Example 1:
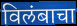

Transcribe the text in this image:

विलंबाचा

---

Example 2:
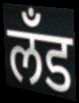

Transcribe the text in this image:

लँड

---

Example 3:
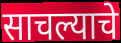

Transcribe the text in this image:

साचल्याचे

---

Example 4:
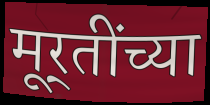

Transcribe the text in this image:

मूर्तींच्या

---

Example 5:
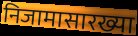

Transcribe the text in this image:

निजामासारख्या